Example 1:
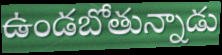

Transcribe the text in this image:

ఉండబోతున్నాడు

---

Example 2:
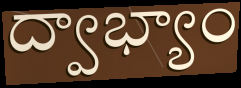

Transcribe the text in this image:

ద్వాభ్యాం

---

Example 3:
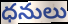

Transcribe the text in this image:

ధనులు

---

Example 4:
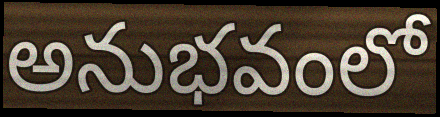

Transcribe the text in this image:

అనుభవంలో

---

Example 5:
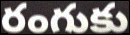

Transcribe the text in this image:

రంగుకు